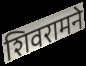
शिवरामने